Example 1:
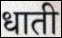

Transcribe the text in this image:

धाती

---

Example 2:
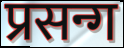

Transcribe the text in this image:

प्रसन्ग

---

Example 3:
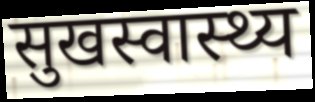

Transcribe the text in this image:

सुखस्वास्थ्य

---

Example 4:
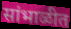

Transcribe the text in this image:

सांभाळीत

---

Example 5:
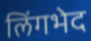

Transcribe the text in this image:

लिंगभेद